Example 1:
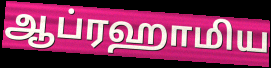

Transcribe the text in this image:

ஆப்ரஹாமிய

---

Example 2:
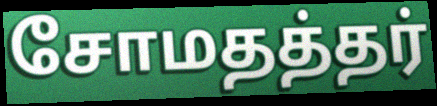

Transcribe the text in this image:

சோமதத்தர்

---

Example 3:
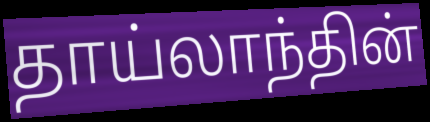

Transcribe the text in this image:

தாய்லாந்தின்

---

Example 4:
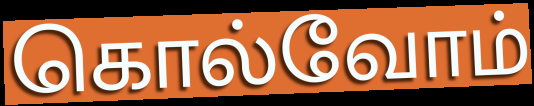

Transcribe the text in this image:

கொல்வோம்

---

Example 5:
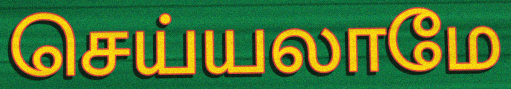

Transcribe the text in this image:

செய்யலாமே